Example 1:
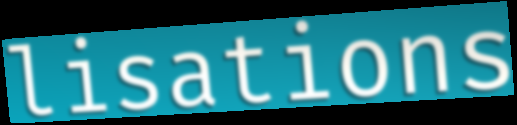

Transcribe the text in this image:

lisations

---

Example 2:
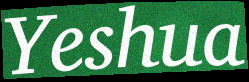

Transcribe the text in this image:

Yeshua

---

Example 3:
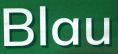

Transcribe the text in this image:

Blau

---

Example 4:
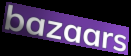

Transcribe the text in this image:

bazaars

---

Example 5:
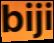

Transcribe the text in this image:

biji